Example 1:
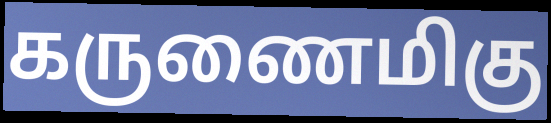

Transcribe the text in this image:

கருணைமிகு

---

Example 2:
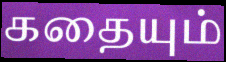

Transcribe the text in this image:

கதையும்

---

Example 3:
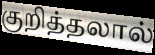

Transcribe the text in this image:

குறித்தலால்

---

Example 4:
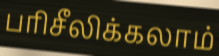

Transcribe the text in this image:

பரிசீலிக்கலாம்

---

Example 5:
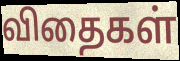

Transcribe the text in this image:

விதைகள்